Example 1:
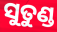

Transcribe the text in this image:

ସୁତୁଣ୍ଡ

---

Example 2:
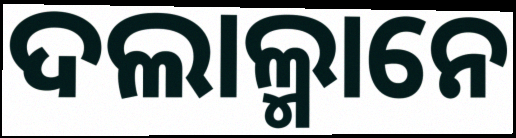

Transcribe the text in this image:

ଦଲାଲ୍ମାନେ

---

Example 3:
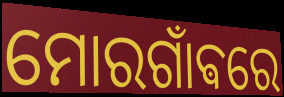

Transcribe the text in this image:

ମୋରଗାଁଵରେ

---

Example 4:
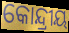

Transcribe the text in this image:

କୋନ୍ଦ୍ରୀୟ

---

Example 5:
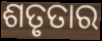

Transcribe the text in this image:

ଶତୃତାର